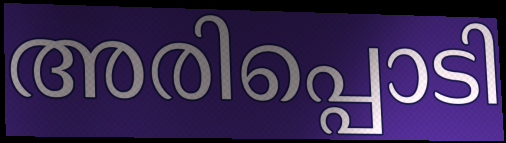
അരിപ്പൊടി